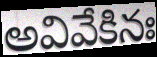
అవివేకినః